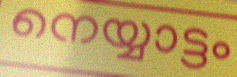
നെയ്യാട്ടം